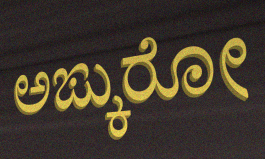
ಅಙ್ಕುರೋ